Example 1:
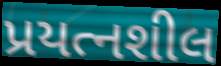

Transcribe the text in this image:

પ્રયત્નશીલ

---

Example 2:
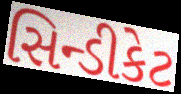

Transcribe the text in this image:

સિન્ડીકેટ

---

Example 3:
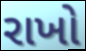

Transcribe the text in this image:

રાખો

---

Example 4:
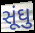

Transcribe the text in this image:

સૂંઘુ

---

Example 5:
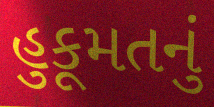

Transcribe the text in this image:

હુકૂમતનું